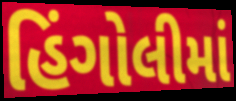
હિંગોલીમાં